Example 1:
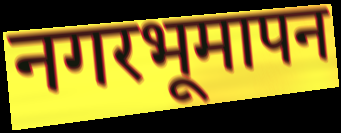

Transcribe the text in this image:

नगरभूमापन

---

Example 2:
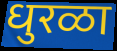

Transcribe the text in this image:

धुरळा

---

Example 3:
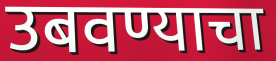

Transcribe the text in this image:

उबवण्याचा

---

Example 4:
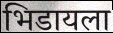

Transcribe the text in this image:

भिडायला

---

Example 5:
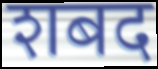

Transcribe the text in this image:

शबद